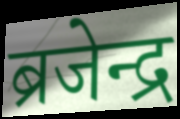
ब्रजेन्द्र